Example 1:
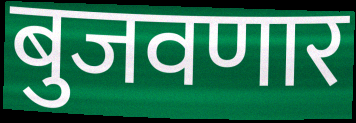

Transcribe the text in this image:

बुजवणार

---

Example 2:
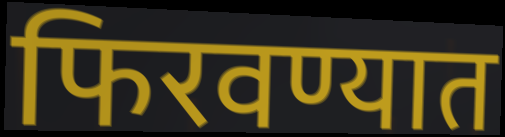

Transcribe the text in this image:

फिरवण्यात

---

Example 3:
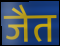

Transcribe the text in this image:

जैत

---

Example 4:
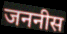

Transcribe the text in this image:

जननीस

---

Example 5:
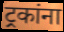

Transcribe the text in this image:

ट्रकांना